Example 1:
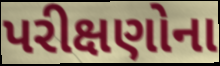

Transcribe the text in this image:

પરીક્ષણોના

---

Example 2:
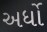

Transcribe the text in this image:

અર્ધો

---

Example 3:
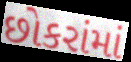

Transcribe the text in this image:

છોકરાંમાં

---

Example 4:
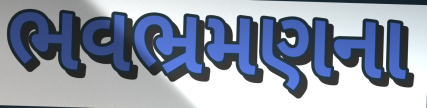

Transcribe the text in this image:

ભવભ્રમણના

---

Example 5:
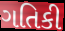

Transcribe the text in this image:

ગતિકી